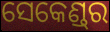
ସେକେଣ୍ଡ୍‌ର